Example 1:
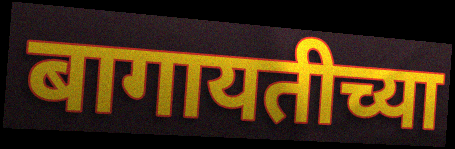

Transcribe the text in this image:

बागायतीच्या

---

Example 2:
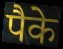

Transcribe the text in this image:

पैके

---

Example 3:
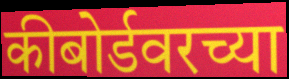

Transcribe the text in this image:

कीबोर्डवरच्या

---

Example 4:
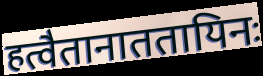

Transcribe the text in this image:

हत्वैतानाततायिनः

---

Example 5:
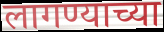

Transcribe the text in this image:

लागण्याच्या